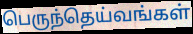
பெருந்தெய்வங்கள்